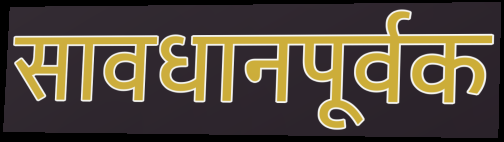
सावधानपूर्वक